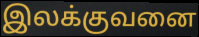
இலக்குவனை